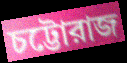
চট্টোরাজ